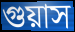
গুয়াস